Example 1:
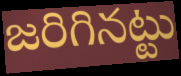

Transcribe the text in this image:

జరిగినట్టు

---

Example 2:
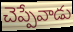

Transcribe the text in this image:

చెప్పేవాడు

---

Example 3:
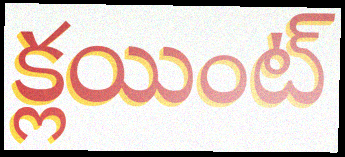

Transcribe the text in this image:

క్లయింట్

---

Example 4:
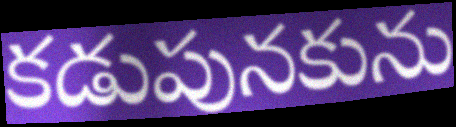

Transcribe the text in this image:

కడుపునకును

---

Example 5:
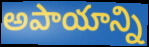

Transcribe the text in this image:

అపాయాన్ని